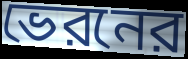
ভেরনের